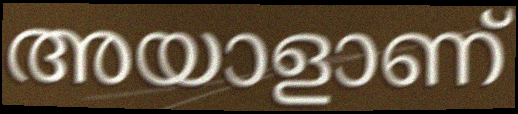
അയാളാണ്